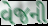
વેજની